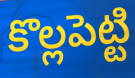
కొల్లపెట్టి